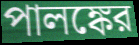
পালঙ্কের